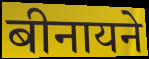
बीनायने